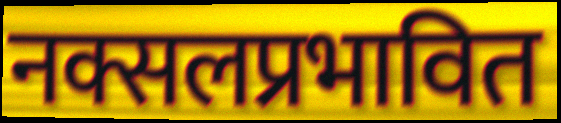
नक्सलप्रभावित